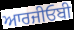
ਆਰਜੀਓਬੀ